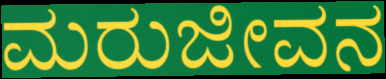
ಮರುಜೀವನ